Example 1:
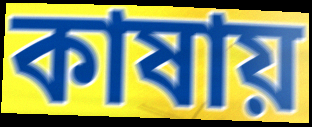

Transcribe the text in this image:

কাষায়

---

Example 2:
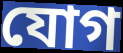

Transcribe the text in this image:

যোগ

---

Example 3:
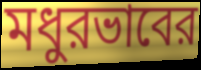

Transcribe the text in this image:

মধুরভাবের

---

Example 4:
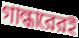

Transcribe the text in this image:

গান্ধারেরই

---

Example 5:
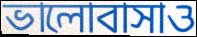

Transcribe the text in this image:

ভালোবাসাও